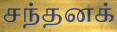
சந்தனக்